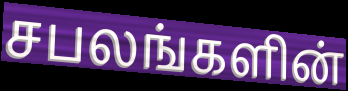
சபலங்களின்